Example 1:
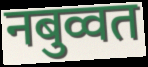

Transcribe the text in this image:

नबुव्वत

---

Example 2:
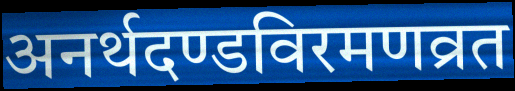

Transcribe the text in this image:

अनर्थदण्डविरमणव्रत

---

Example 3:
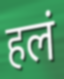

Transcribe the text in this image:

हलं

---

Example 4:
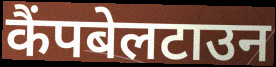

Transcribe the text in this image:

कैंपबेलटाउन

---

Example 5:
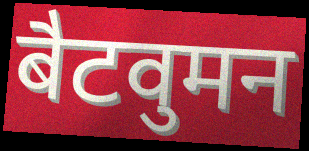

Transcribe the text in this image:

बैटवुमन